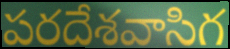
పరదేశవాసిగ